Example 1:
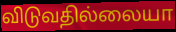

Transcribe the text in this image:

விடுவதில்லையா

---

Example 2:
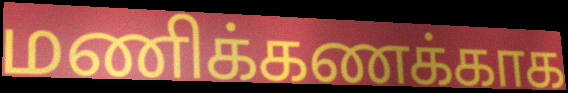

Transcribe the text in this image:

மணிக்கணக்காக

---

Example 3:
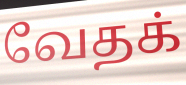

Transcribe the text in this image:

வேதக்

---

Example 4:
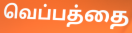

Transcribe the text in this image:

வெப்பத்தை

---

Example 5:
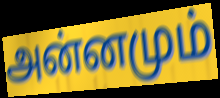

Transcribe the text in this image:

அன்னமும்